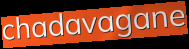
chadavagane